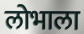
लोभाला